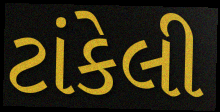
ટાંકેલી